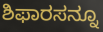
ಶಿಫಾರಸನ್ನೂ